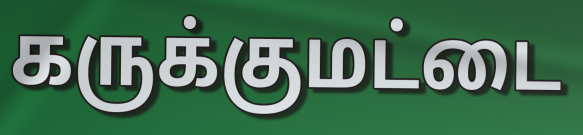
கருக்குமட்டை